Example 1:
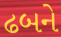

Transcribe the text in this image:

ઢબને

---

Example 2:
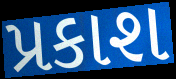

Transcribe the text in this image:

પ્રકાશ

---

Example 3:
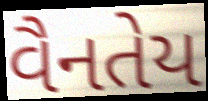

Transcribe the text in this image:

વૈનતેય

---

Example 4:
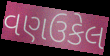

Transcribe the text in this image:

વણઉકેલ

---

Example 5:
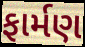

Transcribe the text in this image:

ફાર્મણ